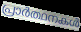
പ്രാർത്ഥനകൾ